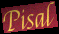
Pisal